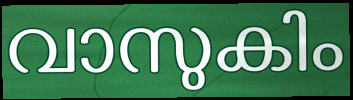
വാസുകിം